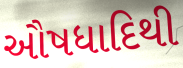
ઔષધાદિથી